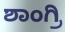
ಶಾಂಗ್ರಿ